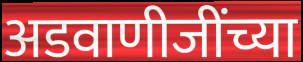
अडवाणीजींच्या